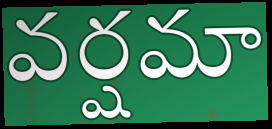
వర్షమా